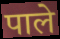
पाले